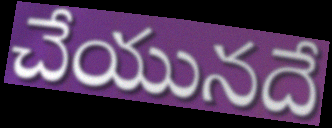
చేయునదే